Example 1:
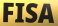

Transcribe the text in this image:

FISA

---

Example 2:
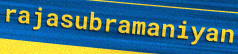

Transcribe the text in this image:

rajasubramaniyan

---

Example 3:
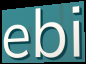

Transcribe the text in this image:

ebi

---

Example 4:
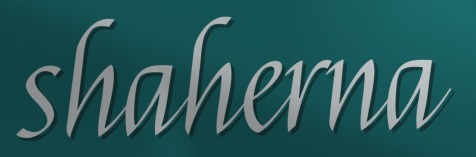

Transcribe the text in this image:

shaherna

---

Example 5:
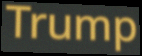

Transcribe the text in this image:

Trump